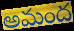
అమంద